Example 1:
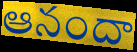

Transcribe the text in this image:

ఆనందా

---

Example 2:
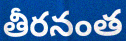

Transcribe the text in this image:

తీరనంత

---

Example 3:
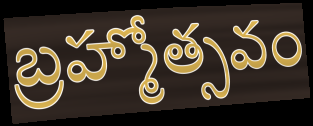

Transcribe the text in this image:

బ్రహ్మోత్సవం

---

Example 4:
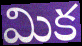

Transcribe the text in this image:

మిక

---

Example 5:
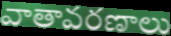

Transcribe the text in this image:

వాతావరణాలు